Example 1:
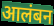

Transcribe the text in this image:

आलंबन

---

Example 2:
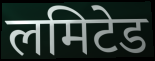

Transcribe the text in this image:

लमिटेड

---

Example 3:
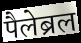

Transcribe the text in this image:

पैलेब्रल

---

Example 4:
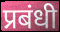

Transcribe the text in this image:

प्रबंधी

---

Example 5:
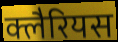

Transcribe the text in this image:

क्लैरियस